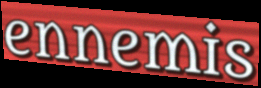
ennemis